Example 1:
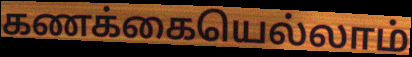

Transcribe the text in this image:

கணக்கையெல்லாம்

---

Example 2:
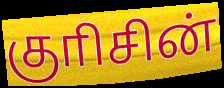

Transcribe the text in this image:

குரிசின்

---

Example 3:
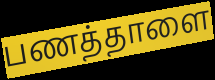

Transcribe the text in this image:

பணத்தாளை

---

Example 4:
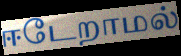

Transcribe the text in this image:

ஈடேறாமல்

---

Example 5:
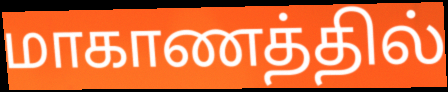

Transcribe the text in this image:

மாகாணத்தில்